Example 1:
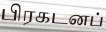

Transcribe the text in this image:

பிரகடனப்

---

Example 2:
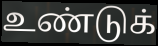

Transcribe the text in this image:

உண்டுக்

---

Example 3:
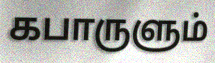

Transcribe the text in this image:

கபாருளும்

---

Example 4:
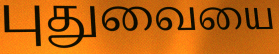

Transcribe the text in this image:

புதுவையை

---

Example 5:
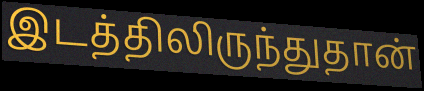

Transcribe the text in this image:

இடத்திலிருந்துதான்